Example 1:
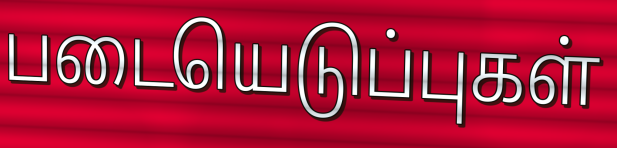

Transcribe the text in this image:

படையெடுப்புகள்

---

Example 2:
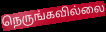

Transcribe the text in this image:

நெருங்கவில்லை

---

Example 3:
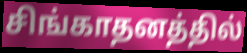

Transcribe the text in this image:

சிங்காதனத்தில்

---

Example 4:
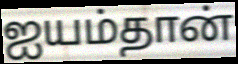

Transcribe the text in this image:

ஐயம்தான்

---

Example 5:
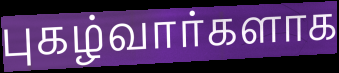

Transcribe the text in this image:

புகழ்வார்களாக